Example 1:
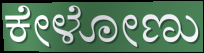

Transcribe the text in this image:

ಕೇಳೋಣು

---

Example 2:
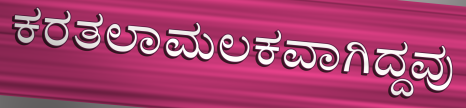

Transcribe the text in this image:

ಕರತಲಾಮಲಕವಾಗಿದ್ದವು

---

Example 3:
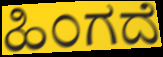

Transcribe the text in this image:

ಹಿಂಗದೆ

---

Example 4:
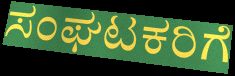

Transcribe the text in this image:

ಸಂಘಟಕರಿಗೆ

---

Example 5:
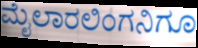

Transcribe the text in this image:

ಮೈಲಾರಲಿಂಗನಿಗೂ